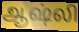
ஆஷ்லி